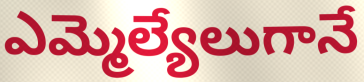
ఎమ్మెల్యేలుగానే